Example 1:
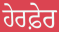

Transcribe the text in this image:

ਹੇਰਫ਼ੇਰ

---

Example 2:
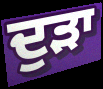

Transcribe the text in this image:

ਦੁੜਾ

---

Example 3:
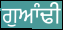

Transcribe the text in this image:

ਗੁਆੰਢੀ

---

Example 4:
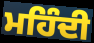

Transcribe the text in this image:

ਮਹਿੰਦੀ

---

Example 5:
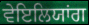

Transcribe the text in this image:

ਵੇਇਲਿਯਾਂਗ